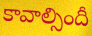
కావాల్సిందీ